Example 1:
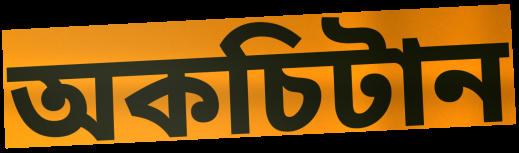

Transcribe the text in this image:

অকচিটান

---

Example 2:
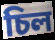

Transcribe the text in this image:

চিল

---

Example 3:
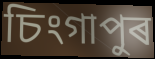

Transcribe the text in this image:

চিংগাপুৰ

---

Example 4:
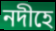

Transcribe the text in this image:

নদীহে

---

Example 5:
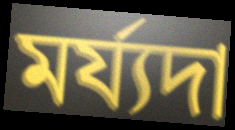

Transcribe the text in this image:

মৰ্য্যদা